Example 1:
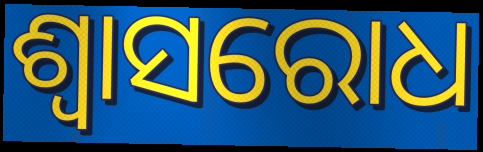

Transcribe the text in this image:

ଶ୍ୱାସରୋଧ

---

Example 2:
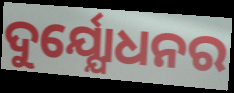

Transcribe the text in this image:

ଦୁର୍ଯ୍ଯୋଧନର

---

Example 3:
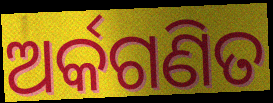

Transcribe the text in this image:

ଅର୍କଗଣିତ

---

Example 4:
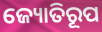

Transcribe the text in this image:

ଜ୍ୟୋତିରୂପ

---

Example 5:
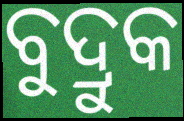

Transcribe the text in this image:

ବୁଦ୍ରୁକ